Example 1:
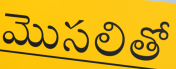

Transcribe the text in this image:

మొసలితో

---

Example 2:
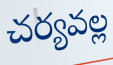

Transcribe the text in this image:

చర్యవల్ల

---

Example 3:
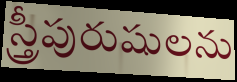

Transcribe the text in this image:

స్త్రీపురుషులను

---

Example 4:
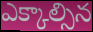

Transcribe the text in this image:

ఎక్కాల్సిన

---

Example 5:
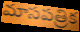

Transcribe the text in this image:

మాసపత్రిక